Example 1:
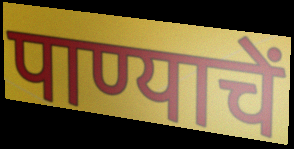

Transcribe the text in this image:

पाण्याचें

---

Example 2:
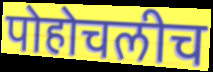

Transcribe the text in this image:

पोहोचलीच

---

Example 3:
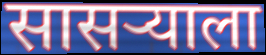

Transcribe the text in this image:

सासर्‍याला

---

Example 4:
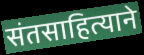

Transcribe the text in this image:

संतसाहित्याने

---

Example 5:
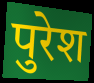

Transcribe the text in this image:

पुरेश